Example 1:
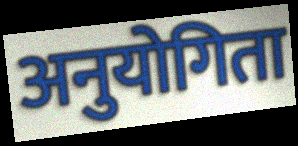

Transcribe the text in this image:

अनुयोगिता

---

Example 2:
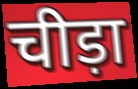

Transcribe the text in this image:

चीड़ा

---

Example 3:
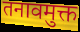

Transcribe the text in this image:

तनावमुक्त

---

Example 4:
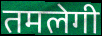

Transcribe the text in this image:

तमलेगी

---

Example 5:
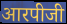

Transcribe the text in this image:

आरपीजी